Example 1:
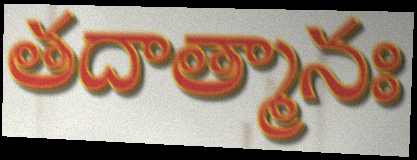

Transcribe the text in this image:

తదాత్మానః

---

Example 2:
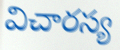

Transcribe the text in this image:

విచారస్య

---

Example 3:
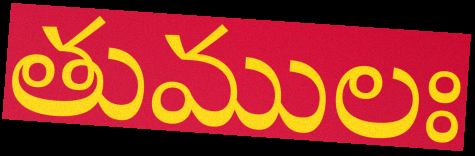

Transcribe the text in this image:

తుములః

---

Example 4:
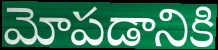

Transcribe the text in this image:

మోపడానికి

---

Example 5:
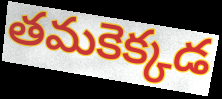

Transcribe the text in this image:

తమకెక్కడ